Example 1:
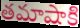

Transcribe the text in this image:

తమాషాకి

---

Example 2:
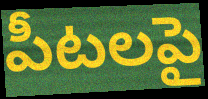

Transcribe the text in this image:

పీటలపై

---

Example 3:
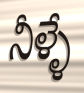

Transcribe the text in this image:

నీళ్ళే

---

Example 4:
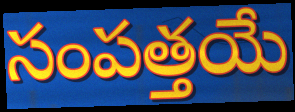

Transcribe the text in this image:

సంపత్తయే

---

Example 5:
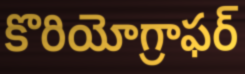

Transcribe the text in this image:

కొరియోగ్రాఫర్